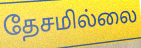
தேசமில்லை